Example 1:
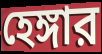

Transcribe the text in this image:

হেঙ্গার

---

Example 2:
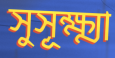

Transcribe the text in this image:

সুসূক্ষ্মা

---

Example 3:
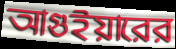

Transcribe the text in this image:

আগুইয়ারের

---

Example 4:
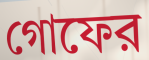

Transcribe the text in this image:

গোফের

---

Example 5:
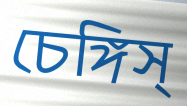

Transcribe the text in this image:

চেঙ্গিস্